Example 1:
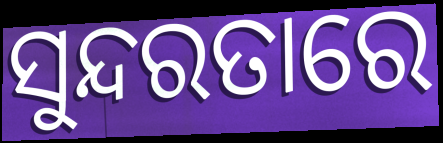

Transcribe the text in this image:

ସୁନ୍ଦରତାରେ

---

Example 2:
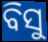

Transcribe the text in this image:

ବିସୁ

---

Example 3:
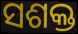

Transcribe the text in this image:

ସଶକ୍ତ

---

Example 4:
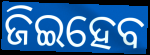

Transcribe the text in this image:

ଜିଇହେବ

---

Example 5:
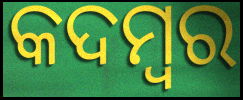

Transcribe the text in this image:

କଦମ୍ବର